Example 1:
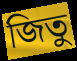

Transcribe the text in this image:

জিতু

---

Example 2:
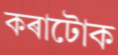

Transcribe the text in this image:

কৰাটোক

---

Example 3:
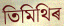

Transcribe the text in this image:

তিমিথিৰ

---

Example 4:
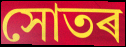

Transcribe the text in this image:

সোতৰ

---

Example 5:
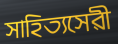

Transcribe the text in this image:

সাহিত্যসেৱী